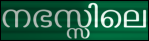
നഭസ്സിലെ